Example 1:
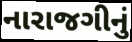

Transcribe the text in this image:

નારાજગીનું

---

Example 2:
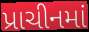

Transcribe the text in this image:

પ્રાચીનમાં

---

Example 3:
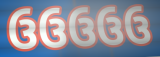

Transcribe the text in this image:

ઉઉઉઉઉ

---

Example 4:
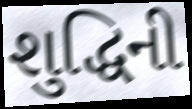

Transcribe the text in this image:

શુદ્ધિની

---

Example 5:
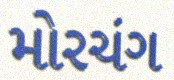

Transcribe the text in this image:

મોરચંગ